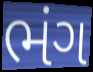
ભંગ